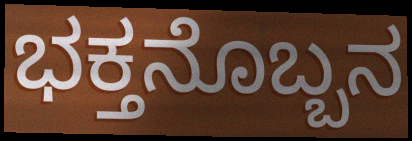
ಭಕ್ತನೊಬ್ಬನ